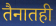
तैनातही